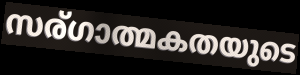
സര്ഗാത്മകതയുടെ